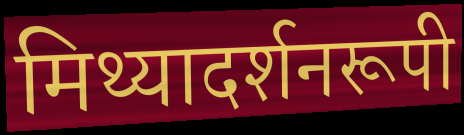
मिथ्यादर्शनरूपी